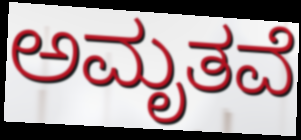
ಅಮೃತವೆ